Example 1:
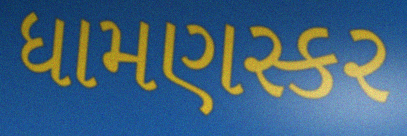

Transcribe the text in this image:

ધામણસ્કર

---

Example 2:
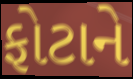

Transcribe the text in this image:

ફોટાને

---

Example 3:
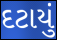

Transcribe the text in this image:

દટાયું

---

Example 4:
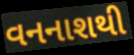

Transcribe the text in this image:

વનનાશથી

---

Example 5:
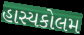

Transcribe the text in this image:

હાસ્યકોલમ